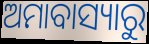
ଅମାବାସ୍ୟାରୁ